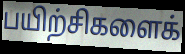
பயிற்சிகளைக்